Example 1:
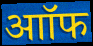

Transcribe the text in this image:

आॉफ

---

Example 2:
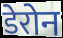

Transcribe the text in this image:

डेरोन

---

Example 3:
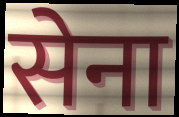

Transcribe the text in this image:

सेना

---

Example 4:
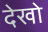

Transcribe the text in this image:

देखो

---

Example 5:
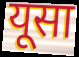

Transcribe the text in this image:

यूसा